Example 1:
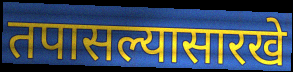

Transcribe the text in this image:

तपासल्यासारखे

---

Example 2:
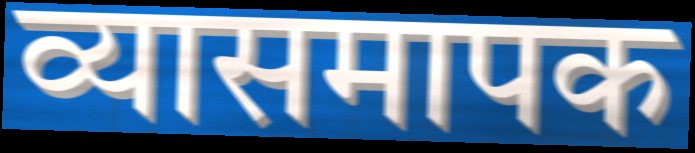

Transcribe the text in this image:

व्यासमापक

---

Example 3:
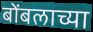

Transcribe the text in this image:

बोंबलाच्या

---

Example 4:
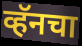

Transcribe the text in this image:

व्हॅनचा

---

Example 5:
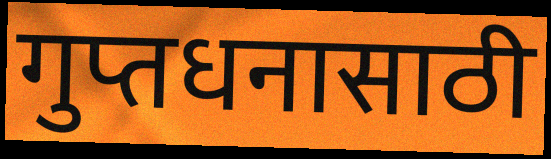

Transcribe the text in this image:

गुप्तधनासाठी